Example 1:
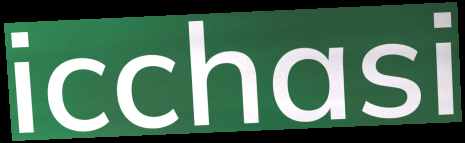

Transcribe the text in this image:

icchasi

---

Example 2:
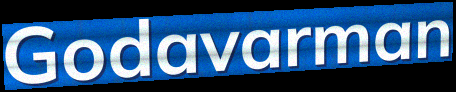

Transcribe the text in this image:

Godavarman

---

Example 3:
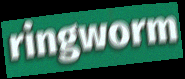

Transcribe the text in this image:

ringworm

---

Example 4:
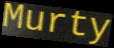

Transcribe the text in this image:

Murty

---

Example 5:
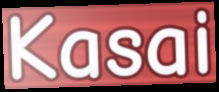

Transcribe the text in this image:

Kasai